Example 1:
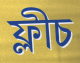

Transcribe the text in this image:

ফ্লীচ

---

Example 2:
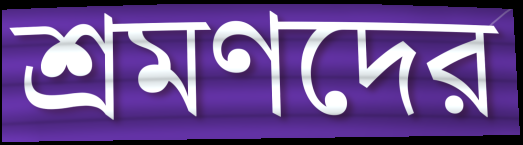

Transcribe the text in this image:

শ্রমণদের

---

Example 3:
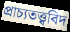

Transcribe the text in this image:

প্রাচ্যতত্ত্ববিদ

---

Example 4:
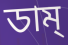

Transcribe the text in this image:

ডাম্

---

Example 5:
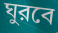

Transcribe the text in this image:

ঘুরবে